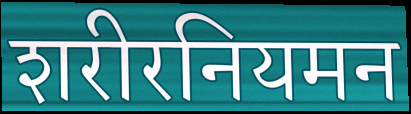
शरीरनियमन